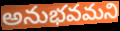
అనుభవమని